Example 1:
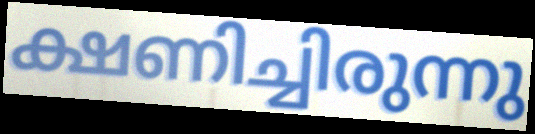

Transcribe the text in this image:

ക്ഷണിച്ചിരുന്നു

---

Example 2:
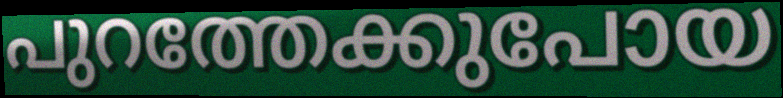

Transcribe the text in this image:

പുറത്തേക്കുപോയ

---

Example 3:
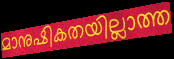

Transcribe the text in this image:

മാനുഷികതയില്ലാത്ത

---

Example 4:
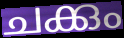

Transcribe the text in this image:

ചക്കും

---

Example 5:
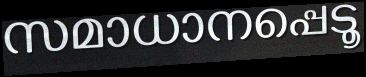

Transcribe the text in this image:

സമാധാനപ്പെടൂ